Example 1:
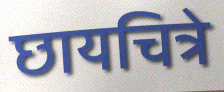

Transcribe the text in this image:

छायचित्रे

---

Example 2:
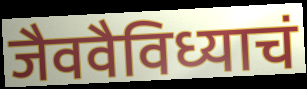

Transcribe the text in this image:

जैववैविध्याचं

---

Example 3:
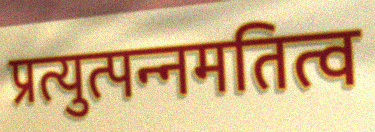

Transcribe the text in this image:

प्रत्युत्पन्नमतित्व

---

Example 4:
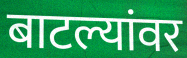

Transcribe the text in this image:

बाटल्यांवर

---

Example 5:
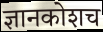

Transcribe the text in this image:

ज्ञानकोशच